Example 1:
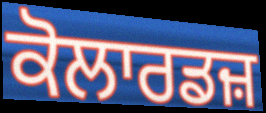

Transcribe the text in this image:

ਕੋਲਾਰਡਜ਼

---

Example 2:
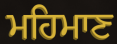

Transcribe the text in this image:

ਮਹਿਮਾਣ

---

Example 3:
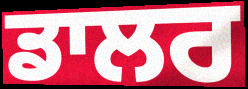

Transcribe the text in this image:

ਡਾਲਰ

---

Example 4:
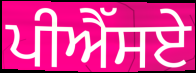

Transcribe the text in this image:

ਪੀਐੱਸਏ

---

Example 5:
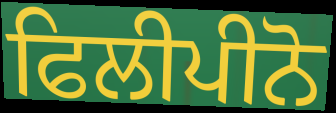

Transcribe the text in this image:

ਫਿਲੀਪੀਨੋ